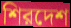
শিরদেশ